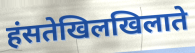
हंसतेखिलखिलाते